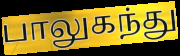
பாலுகந்து